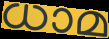
ധാമ